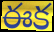
ఈక